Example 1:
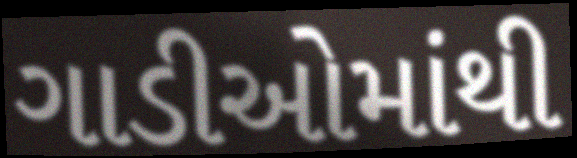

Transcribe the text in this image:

ગાડીઓમાંથી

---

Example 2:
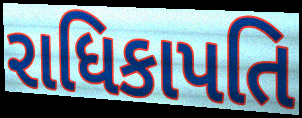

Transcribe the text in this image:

રાધિકાપતિ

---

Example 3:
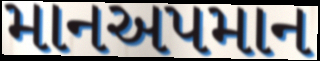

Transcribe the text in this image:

માનઅપમાન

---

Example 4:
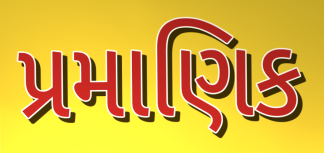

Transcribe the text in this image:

પ્રમાણિક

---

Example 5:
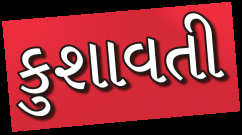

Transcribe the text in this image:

કુશાવતી